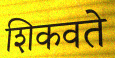
शिकवते